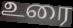
உரை